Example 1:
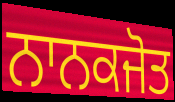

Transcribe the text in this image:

ਨਾਨਕਜੋਤ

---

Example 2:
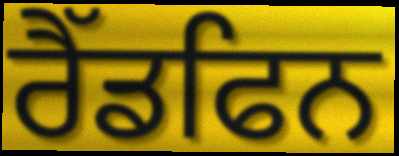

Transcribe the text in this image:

ਰੈੱਡਫਿਨ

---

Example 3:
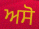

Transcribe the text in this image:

ਅਸੋ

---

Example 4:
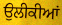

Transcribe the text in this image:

ਉਲੀਕੀਆਂ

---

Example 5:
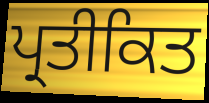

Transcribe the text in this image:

ਪ੍ਰਤੀਕਿਤ